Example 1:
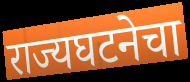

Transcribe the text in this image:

राज्यघटनेचा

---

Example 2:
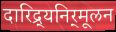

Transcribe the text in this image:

दारिद्र्यनिर्मूलन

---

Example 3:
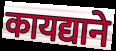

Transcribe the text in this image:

कायद्याने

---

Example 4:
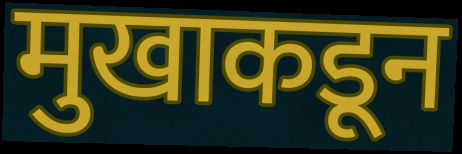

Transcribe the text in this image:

मुखाकडून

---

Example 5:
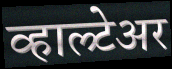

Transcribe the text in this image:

व्हाल्टेअर